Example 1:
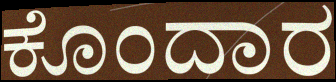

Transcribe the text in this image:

ಕೊಂದಾರ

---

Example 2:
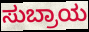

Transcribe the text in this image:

ಸುಬ್ರಾಯ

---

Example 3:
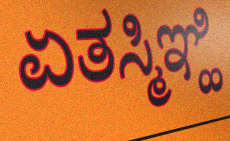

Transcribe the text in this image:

ಏತಸ್ಮಿಞ್ಹಿ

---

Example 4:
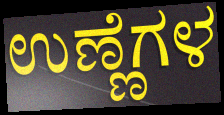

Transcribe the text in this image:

ಉಣ್ಣೆಗಳ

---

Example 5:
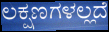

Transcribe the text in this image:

ಲಕ್ಷಣಗಳಲ್ಲದೆ